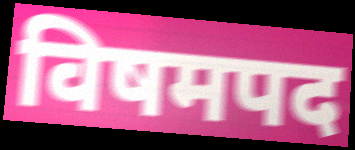
विषमपद